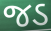
જડ